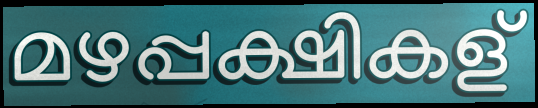
മഴപ്പക്ഷികള്